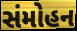
સંમોહન